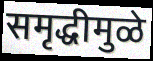
समृद्धीमुळे